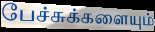
பேச்சுக்களையும்